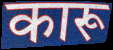
कारू